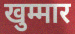
खुम्मार